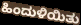
ಹಿಂದುಳಿಯಿತು